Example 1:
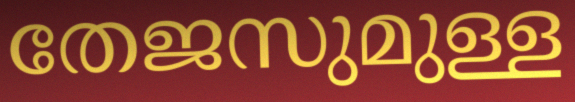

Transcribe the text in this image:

തേജസുമുള്ള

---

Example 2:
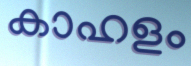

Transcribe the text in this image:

കാഹളം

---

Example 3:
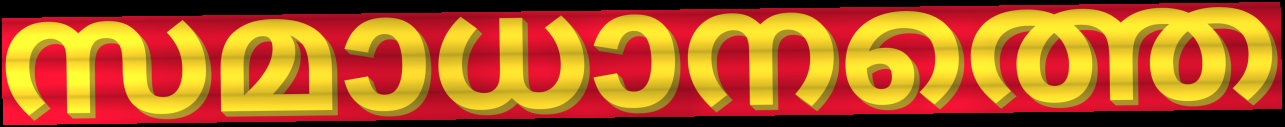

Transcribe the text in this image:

സമാധാനത്തെ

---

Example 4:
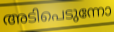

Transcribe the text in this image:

അടിപെടുന്നോ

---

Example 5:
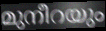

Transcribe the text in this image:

മുനീറയും